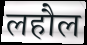
लहौल